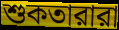
শুকতারারা